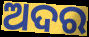
ଅଦର